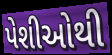
પેશીઓથી